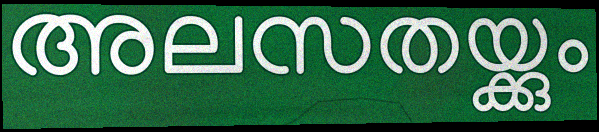
അലസതയ്ക്കും